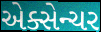
એક્સેન્ચર